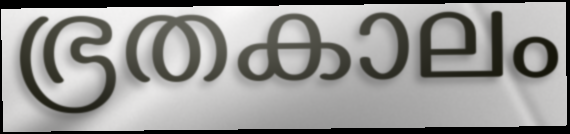
ഭ്രതകാലം